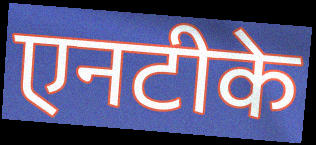
एनटीके